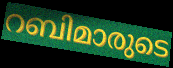
റബിമാരുടെ